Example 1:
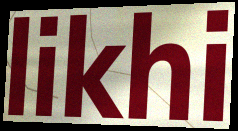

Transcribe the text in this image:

likhi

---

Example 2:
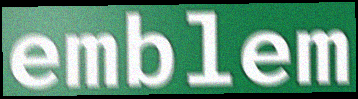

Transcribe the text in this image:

emblem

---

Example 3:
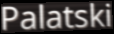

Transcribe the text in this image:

Palatski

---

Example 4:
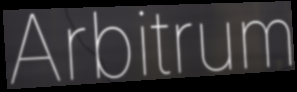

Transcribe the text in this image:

Arbitrum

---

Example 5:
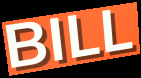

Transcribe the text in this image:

BILL